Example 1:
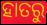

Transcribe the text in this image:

ହାତରୁ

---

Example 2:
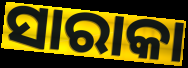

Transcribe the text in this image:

ସାରାକା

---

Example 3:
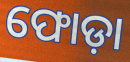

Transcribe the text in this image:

ଫୋଡ଼ା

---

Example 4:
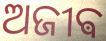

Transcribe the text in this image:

ଅଜୀଵ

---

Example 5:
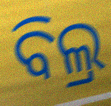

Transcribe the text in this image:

ବିଲ୍ର